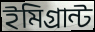
ইমিগ্রান্ট